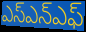
ఎస్ఎన్ఎఫ్